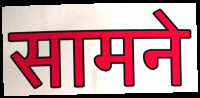
सामने